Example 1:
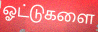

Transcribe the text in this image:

ஓட்டுகளை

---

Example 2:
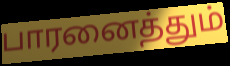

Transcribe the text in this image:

பாரனைத்தும்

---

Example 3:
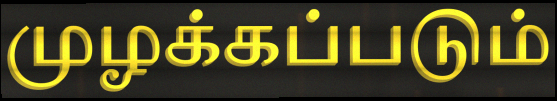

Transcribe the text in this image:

முழக்கப்படும்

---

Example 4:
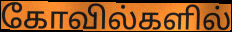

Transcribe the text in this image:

கோவில்களில்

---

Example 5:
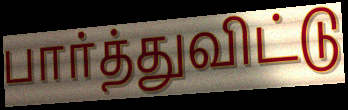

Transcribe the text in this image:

பார்த்துவிட்டு